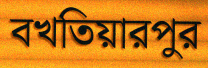
বখতিয়ারপুর